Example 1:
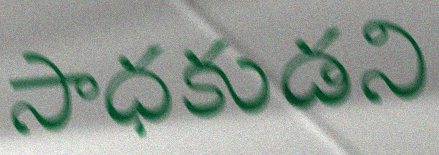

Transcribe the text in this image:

సాధకుడని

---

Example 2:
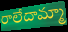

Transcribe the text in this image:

రాలేదామ్మా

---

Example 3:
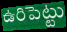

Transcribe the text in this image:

ఉరిపెట్టు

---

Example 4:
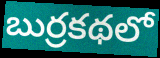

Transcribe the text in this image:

బుర్రకథలో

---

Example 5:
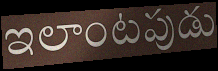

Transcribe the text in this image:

ఇలాంటపుడు